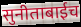
सुनीताबाईच